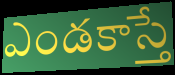
ఎండకాస్తే